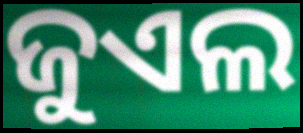
ଜୁଏଲ